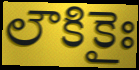
లౌకికైః